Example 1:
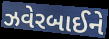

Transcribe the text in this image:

ઝવેરબાઈને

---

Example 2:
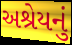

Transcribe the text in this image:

અશ્રેયનું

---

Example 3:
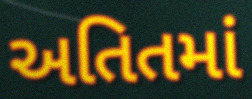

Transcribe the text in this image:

અતિતમાં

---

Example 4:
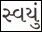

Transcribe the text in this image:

સ્વયું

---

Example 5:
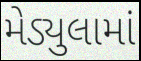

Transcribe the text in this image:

મેડ્યુલામાં